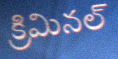
క్రిమినల్